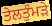
ਤੇਲਤੁੰਮੜੇ